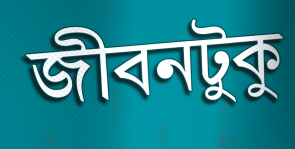
জীবনটুকু